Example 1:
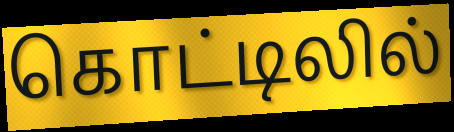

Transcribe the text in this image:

கொட்டிலில்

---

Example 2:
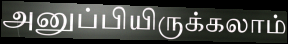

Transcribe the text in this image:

அனுப்பியிருக்கலாம்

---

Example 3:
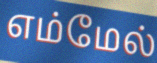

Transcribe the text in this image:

எம்மேல்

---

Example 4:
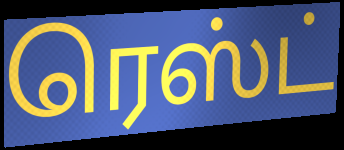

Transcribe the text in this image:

ரெஸ்ட்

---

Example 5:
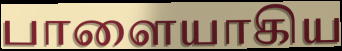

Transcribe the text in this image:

பாளையாகிய